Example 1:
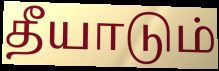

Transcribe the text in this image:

தீயாடும்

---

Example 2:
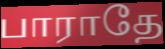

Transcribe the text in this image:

பாராதே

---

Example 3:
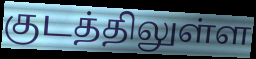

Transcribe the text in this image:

குடத்திலுள்ள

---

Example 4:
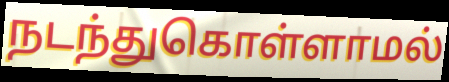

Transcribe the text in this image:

நடந்துகொள்ளாமல்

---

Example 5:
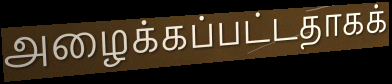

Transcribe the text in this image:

அழைக்கப்பட்டதாகக்